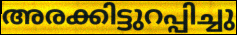
അരക്കിട്ടുറപ്പിച്ചു